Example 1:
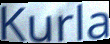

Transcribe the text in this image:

Kurla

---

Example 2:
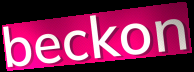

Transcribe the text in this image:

beckon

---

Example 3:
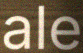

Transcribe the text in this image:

ale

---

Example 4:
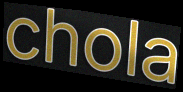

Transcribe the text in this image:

chola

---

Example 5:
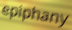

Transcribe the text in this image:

epiphany